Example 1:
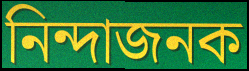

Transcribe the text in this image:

নিন্দাজনক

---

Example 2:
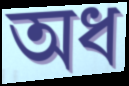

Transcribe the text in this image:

অধ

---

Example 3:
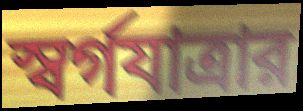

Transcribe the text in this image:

স্বর্গযাত্রার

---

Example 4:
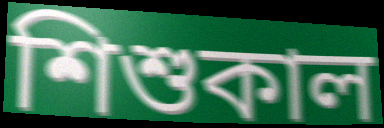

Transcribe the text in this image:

শিশুকাল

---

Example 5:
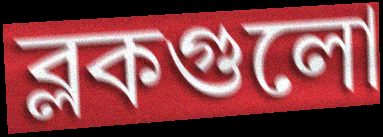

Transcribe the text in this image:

ব্লকগুলো